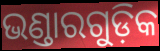
ଭଣ୍ଡାରଗୁଡ଼ିକ